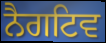
ਨੈਗਟਿਵ